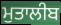
ਮੁਤਾਲੀਬ